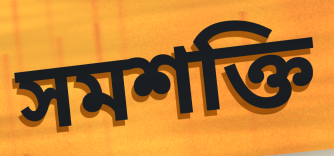
সমশক্তি